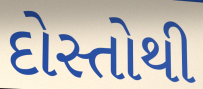
દોસ્તોથી